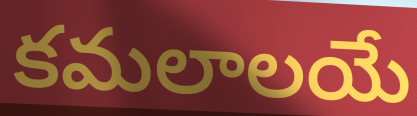
కమలాలయే